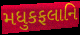
મધુકફલાનિ